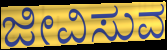
ಜೀವಿಸುವ